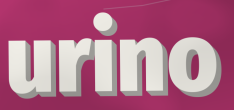
urino